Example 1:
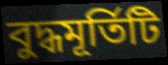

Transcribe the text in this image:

বুদ্ধমূর্তিটি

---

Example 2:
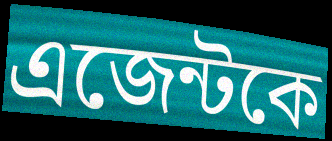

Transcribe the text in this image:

এজেন্টকে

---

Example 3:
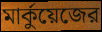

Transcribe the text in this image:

মার্কুয়েজের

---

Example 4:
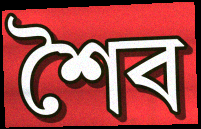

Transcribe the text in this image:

শৈব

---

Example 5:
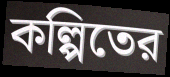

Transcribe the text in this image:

কল্পিতের